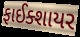
ફાઈક્શાયર